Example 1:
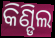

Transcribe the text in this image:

କିଣ୍ଡିଲ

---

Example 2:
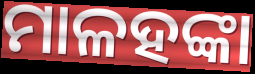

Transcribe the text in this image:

ମାଳହଙ୍କା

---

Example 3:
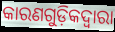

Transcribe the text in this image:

କାରଣଗୁଡ଼ିକଦ୍ବାରା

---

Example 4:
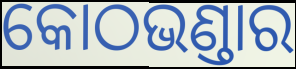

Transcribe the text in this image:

କୋଠଭଣ୍ଡାର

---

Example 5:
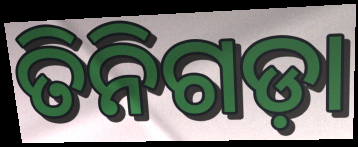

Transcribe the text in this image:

ତିନିଗଡ଼ା